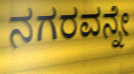
ನಗರವನ್ನೇ